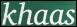
khaas